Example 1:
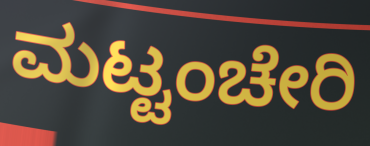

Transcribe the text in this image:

ಮಟ್ಟಂಚೇರಿ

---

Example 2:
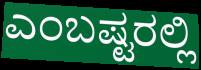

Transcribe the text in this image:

ಎಂಬಷ್ಟರಲ್ಲಿ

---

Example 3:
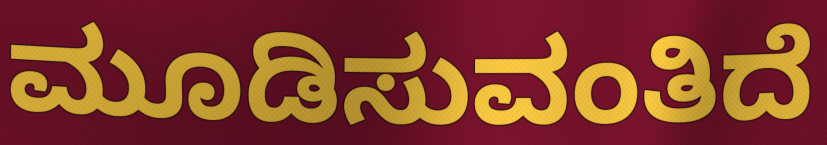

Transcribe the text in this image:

ಮೂಡಿಸುವಂತಿದೆ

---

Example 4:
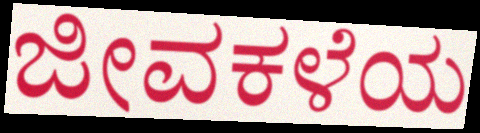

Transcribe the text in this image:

ಜೀವಕಳೆಯ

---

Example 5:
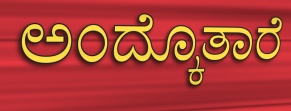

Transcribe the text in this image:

ಅಂದ್ಕೊತಾರೆ